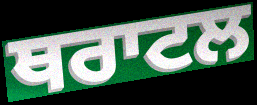
ਥਰਾਟਲ